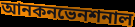
আনকনভেনশনাল